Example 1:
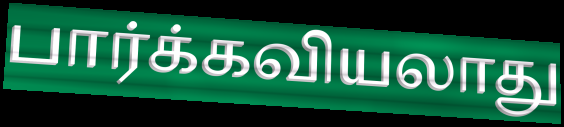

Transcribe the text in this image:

பார்க்கவியலாது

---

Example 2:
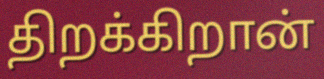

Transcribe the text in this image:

திறக்கிறான்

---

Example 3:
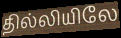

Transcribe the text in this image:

தில்லியிலே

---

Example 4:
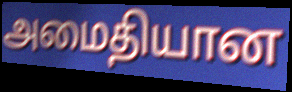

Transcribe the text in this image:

அமைதியான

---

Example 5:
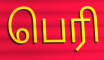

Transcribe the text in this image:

பெரி